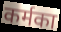
कर्मका